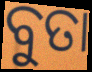
ବୁତା